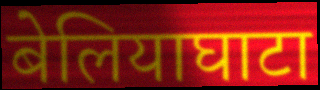
बेलियाघाटा